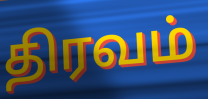
திரவம்